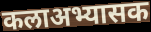
कलाअभ्यासक